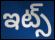
ఇట్స్